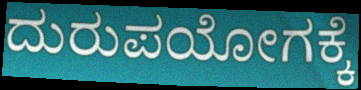
ದುರುಪಯೋಗಕ್ಕೆ